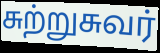
சுற்றுசுவர்